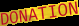
DONATION